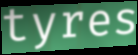
tyres